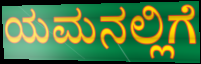
ಯಮನಲ್ಲಿಗೆ